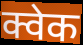
क्वेक